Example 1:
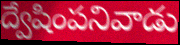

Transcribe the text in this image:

ద్వేషింపనివాడు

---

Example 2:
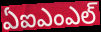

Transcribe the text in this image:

ఏఐఎంఎల్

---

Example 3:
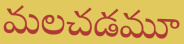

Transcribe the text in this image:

మలచడమూ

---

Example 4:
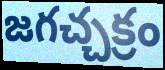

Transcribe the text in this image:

జగచ్చక్రం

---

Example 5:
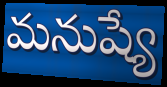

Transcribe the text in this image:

మనుష్యే